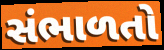
સંભાળતો